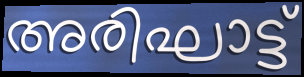
അരിഘാട്ട്